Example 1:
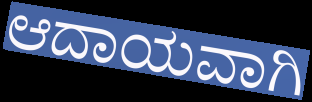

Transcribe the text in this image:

ಆದಾಯವಾಗಿ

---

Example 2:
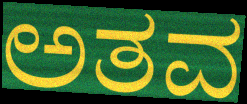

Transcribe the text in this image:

ಅತವ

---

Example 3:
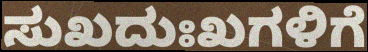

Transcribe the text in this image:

ಸುಖದುಃಖಗಳಿಗೆ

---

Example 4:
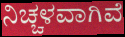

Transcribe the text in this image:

ನಿಚ್ಚಳವಾಗಿವೆ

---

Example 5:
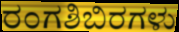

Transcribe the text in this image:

ರಂಗಶಿಬಿರಗಳು